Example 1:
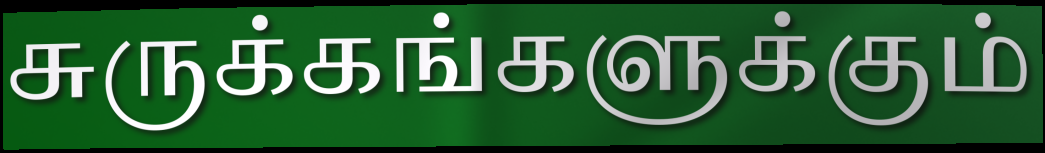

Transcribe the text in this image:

சுருக்கங்களுக்கும்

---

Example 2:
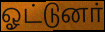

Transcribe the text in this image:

ஓட்டுனர்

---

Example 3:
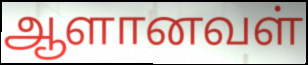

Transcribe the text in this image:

ஆளானவள்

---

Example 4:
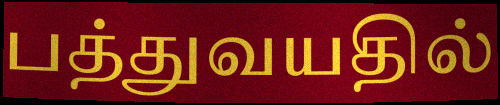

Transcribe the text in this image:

பத்துவயதில்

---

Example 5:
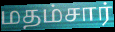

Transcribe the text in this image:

மதம்சார்